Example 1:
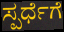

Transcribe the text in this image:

ಸ್ಪರ್ಧೆಗೆ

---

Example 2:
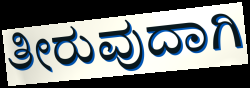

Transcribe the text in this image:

ತೀರುವುದಾಗಿ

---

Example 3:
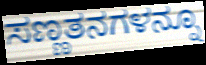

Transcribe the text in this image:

ಸಣ್ಣತನಗಳನ್ನೂ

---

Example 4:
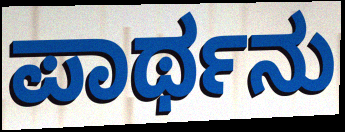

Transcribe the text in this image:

ಪಾರ್ಥನು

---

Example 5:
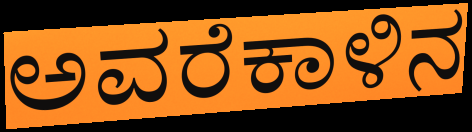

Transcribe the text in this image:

ಅವರೆಕಾಳಿನ